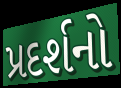
પ્રદર્શનો